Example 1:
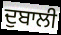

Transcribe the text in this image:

ਦੁਬਾਲੀ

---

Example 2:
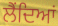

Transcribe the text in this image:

ਲੈਂਦਿਆਂ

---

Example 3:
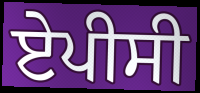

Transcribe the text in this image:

ਏਪੀਸੀ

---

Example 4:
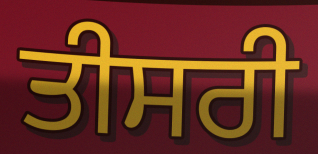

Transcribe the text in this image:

ਤੀਸਰੀ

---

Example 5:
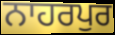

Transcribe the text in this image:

ਨਾਹਰਪੁਰ